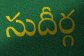
సుదీర్గ